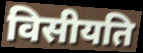
विसीयति